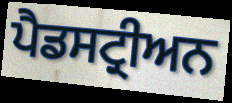
ਪੈਡਸਟ੍ਰੀਅਨ